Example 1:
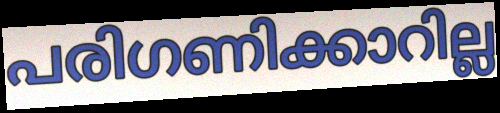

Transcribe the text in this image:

പരിഗണിക്കാറില്ല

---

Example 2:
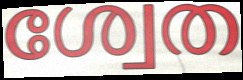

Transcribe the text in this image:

ശ്വേത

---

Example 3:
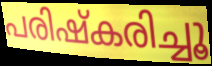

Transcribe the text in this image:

പരിഷ്കരിച്ചൂ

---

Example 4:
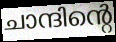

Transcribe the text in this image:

ചാന്ദിന്റെ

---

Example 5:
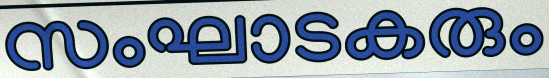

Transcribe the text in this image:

സംഘാടകരും